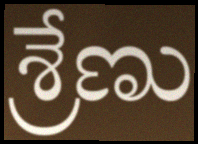
శ్రేణు